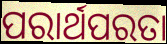
ପରାର୍ଥପରତା